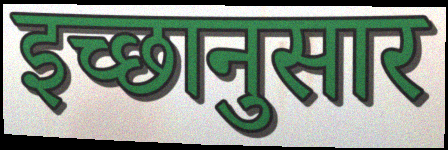
इच्छानुसार